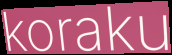
koraku